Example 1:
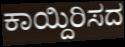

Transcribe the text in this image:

ಕಾಯ್ದಿರಿಸದ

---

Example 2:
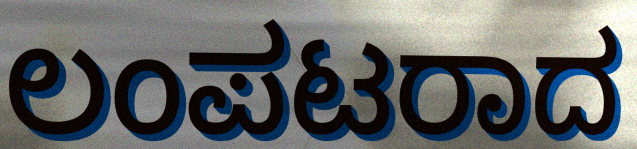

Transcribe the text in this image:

ಲಂಪಟರಾದ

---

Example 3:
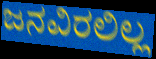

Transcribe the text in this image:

ಜನವಿರಲಿಲ್ಲ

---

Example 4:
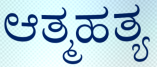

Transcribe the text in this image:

ಆತ್ಮಹತ್ಯ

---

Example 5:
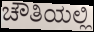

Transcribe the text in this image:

ಚೌತಿಯಲ್ಲಿ